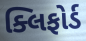
ક્લિફોર્ડ